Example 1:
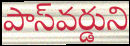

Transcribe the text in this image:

పాస్‌వర్డుని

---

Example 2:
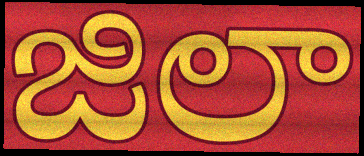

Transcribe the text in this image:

జిలా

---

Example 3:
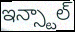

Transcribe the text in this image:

ఇన్స్టాల్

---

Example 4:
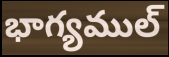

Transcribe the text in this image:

భాగ్యముల్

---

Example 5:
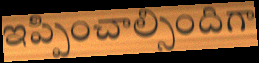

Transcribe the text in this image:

ఇప్పించాల్సిందిగా